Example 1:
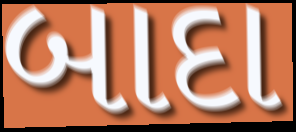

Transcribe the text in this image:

બાદા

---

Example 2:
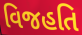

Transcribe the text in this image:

વિજહતિ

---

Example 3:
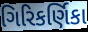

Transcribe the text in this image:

ગિરિકર્ણિકા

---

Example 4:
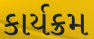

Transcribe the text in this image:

કાર્યક્રમ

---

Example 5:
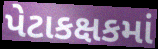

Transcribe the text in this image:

પેટાકક્ષકમાં